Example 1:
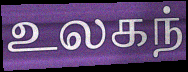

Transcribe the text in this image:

உலகந்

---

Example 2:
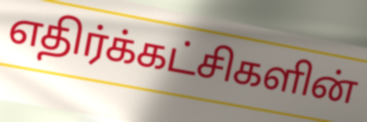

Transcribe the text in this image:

எதிர்க்கட்சிகளின்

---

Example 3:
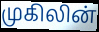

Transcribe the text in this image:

முகிலின்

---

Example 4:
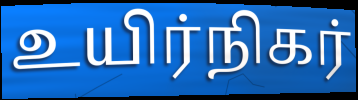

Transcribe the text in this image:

உயிர்நிகர்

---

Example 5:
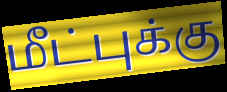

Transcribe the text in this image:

மீட்புக்கு